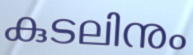
കുടലിനും